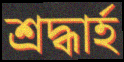
শ্রদ্ধার্হ